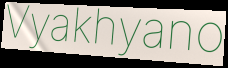
Vyakhyano